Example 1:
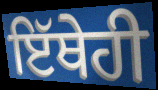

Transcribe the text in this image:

ਇੱਥੇਹੀ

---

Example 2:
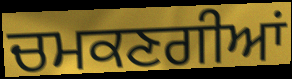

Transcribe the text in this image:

ਚਮਕਣਗੀਆਂ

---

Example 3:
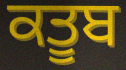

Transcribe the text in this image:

ਕਤੂਬ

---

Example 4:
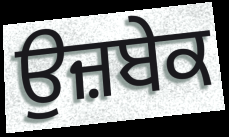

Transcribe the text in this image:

ਉਜ਼ਬੇਕ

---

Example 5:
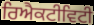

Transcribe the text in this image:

ਰਿਐਕਟੀਵਿਟੀ